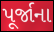
પૂર્જાના